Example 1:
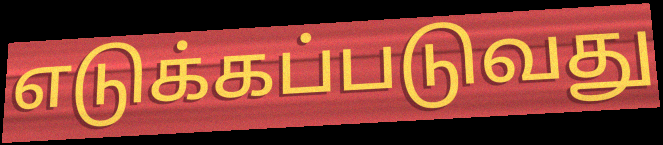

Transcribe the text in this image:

எடுக்கப்படுவது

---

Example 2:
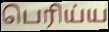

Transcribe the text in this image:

பெரிய்ய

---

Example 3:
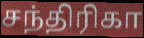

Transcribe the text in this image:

சந்திரிகா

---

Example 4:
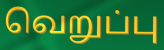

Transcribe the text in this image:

வெறுப்பு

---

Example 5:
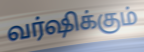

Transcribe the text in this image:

வர்ஷிக்கும்